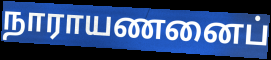
நாராயணனைப்